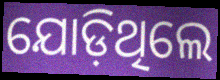
ଯୋଡ଼ିଥିଲେ